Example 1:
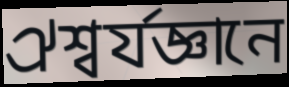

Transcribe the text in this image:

ঐশ্বর্যজ্ঞানে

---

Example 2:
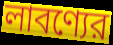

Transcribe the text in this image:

লাবণ্যের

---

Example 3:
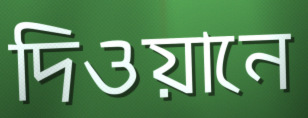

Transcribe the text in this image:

দিওয়ানে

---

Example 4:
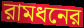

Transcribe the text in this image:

রামধনের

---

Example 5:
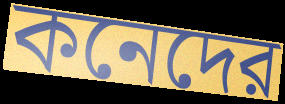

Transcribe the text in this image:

কনেদের